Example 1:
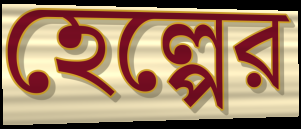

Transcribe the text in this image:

হেল্পের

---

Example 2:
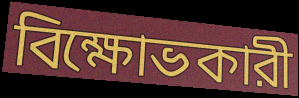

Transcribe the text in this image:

বিক্ষোভকারী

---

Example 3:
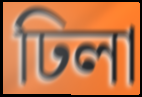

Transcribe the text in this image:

ঢিলা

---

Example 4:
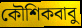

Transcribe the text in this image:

কৌশিকবাবু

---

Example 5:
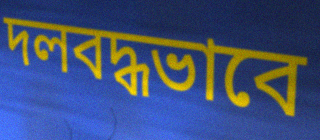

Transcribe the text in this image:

দলবদ্ধভাবে